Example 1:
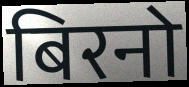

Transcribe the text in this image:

बिरनो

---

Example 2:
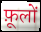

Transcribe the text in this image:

फ़ूलों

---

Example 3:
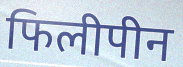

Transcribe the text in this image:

फिलीपीन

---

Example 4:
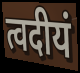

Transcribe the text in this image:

त्वदीयं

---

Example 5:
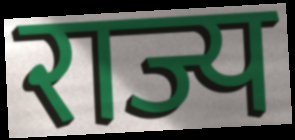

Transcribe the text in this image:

राज्य